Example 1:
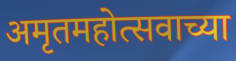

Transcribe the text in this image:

अमृतमहोत्सवाच्या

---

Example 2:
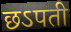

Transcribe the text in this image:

छऽपती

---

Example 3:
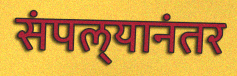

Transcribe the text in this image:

संपल्यानंतर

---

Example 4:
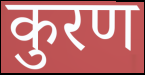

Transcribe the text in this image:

कुरण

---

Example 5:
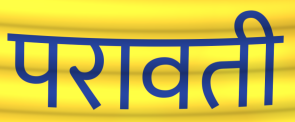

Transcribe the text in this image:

परावती